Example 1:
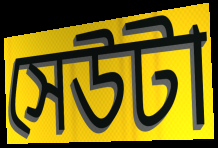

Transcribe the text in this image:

সেউটা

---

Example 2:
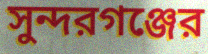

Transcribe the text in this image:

সুন্দরগঞ্জের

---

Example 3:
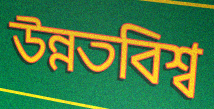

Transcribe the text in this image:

উন্নতবিশ্ব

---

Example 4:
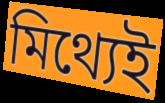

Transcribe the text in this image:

মিথ্যেই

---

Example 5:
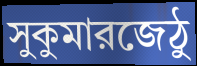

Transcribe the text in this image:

সুকুমারজেঠু